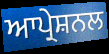
ਆਪ੍ਰੇਸ਼ਨਲ